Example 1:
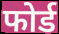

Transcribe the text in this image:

फोर्ड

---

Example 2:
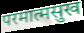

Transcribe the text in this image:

परमात्मसुख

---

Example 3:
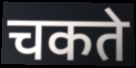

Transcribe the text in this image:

चकते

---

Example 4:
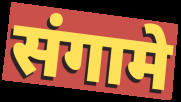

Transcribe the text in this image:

संगामे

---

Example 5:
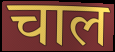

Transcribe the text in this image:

चाल